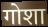
गोशा